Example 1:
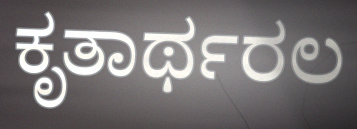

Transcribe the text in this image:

ಕೃತಾರ್ಥರಲ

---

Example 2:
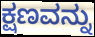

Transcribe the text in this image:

ಕ್ಷಣವನ್ನು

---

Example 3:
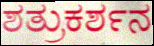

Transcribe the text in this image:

ಶತ್ರುಕರ್ಶನ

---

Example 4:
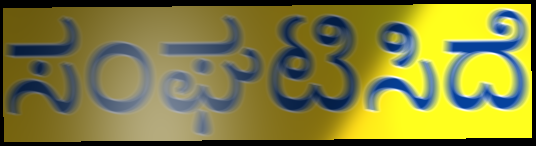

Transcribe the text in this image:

ಸಂಘಟಿಸಿದೆ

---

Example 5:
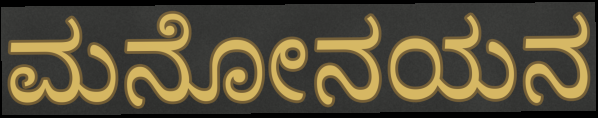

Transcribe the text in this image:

ಮನೋನಯನ